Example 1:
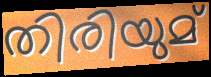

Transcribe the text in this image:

തിരിയുമ്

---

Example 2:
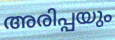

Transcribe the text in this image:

അരിപ്പയും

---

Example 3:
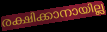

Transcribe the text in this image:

രക്ഷിക്കാനായില്ല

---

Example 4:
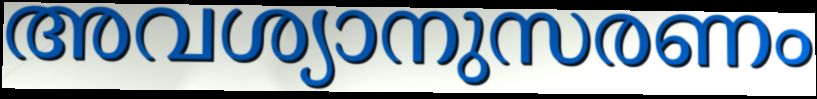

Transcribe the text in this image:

അവശ്യാനുസരണം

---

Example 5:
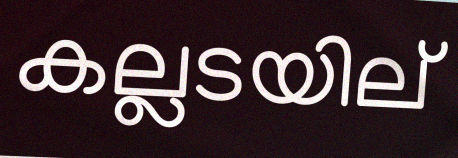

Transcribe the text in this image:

കല്ലടയില്